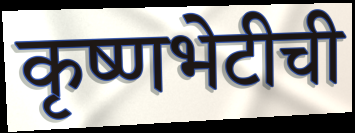
कृष्णभेटीची